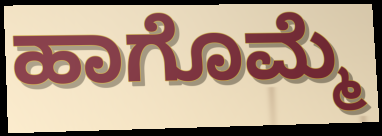
ಹಾಗೊಮ್ಮೆ